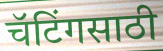
चॅटिंगसाठी